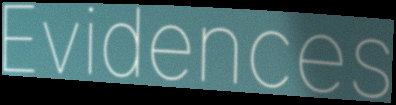
Evidences